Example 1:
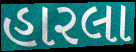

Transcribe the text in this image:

હારલા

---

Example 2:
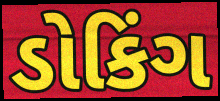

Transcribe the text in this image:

ડોકિંગ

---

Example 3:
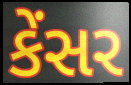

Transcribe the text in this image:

કેંસર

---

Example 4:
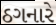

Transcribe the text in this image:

ઠગનારે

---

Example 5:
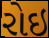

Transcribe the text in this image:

રોઇ